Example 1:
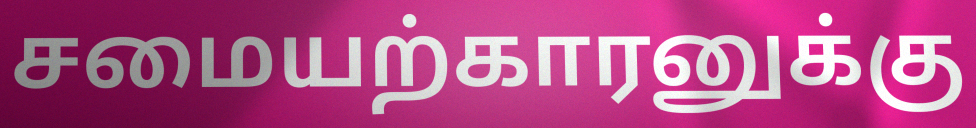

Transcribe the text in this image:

சமையற்காரனுக்கு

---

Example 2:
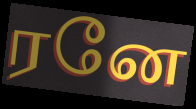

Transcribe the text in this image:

ரனே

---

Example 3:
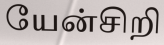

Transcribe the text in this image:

யேன்சிறி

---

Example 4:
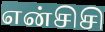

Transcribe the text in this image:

என்சிசி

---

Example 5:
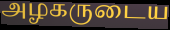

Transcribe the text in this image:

அழகருடைய